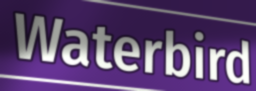
Waterbird